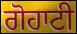
ਗੋਹਾਟੀ